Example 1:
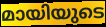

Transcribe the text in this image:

മായിയുടെ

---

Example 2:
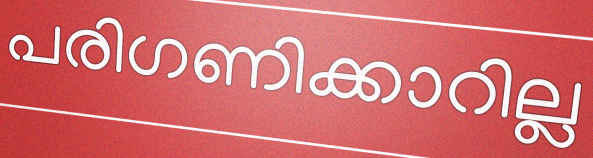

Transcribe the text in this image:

പരിഗണിക്കാറില്ല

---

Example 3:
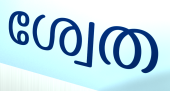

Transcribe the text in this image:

ശ്വേത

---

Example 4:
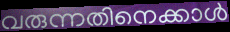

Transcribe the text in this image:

വരുന്നതിനെക്കാൾ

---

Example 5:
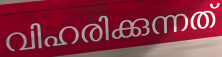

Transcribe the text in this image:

വിഹരിക്കുന്നത്